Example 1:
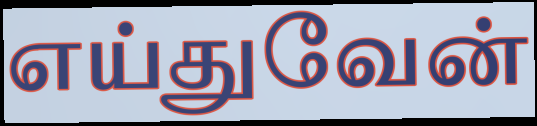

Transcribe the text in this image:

எய்துவேன்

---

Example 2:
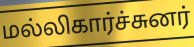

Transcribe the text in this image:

மல்லிகார்ச்சுனர்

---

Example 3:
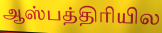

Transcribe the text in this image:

ஆஸ்பத்திரியில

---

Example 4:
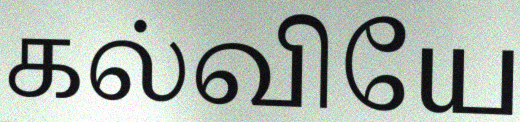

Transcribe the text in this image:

கல்வியே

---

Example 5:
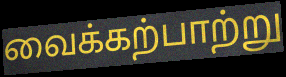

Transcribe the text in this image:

வைக்கற்பாற்று